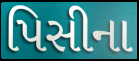
પિસીના